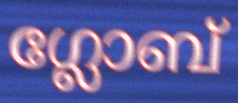
ഗ്ലോബ്